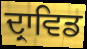
ਦ੍ਰਾਵਿਡ